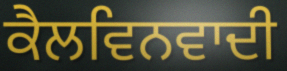
ਕੈਲਵਿਨਵਾਦੀ